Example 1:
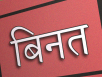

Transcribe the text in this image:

बिनत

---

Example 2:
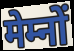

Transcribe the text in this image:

मेम्नों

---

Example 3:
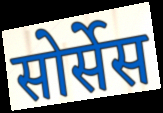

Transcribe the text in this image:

सोर्सेस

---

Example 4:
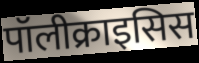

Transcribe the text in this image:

पॉलीक्राइसिस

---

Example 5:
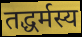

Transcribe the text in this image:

तद्धर्मस्य